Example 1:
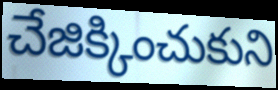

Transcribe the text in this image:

చేజిక్కించుకుని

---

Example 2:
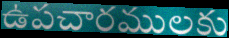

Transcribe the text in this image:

ఉపచారములకు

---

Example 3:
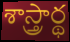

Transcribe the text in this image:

శాస్త్రార్థ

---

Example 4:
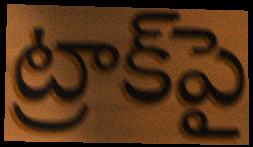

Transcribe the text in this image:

ట్రాక్‌పై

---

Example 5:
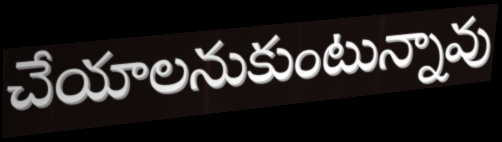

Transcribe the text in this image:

చేయాలనుకుంటున్నావు